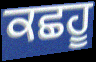
ਕਛਹੂ